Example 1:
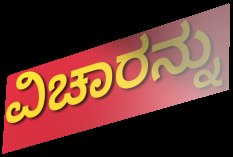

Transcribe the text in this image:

ವಿಚಾರನ್ನು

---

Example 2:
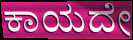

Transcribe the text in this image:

ಕಾಯದೇ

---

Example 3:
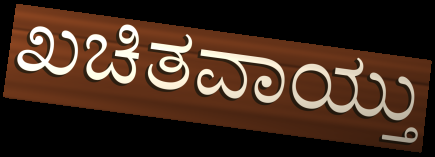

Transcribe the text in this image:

ಖಚಿತವಾಯ್ತು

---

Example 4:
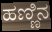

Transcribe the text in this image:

ಹಣ್ಣಿನ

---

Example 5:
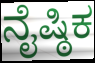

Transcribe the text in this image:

ನೈಷ್ಠಿಕ